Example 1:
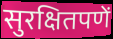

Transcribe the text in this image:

सुरक्षितपणें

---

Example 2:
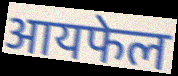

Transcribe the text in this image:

आयफेल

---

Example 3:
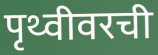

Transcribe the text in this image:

पृथ्वीवरची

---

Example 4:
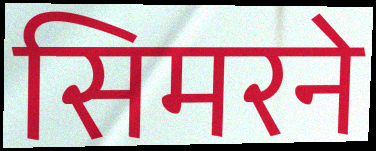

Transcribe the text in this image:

सिमरने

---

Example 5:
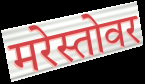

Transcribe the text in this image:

मरेस्तोवर